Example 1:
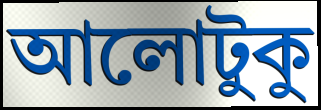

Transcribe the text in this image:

আলোটুকু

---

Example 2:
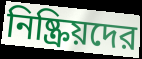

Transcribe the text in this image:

নিষ্ক্রিয়দের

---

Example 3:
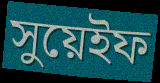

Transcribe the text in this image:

সুয়েইফ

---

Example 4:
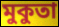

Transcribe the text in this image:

মুকুতা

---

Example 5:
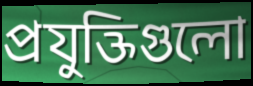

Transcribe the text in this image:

প্রযুক্তিগুলো